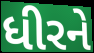
ધીરને